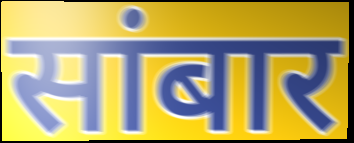
सांबार